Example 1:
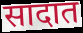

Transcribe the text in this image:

सादात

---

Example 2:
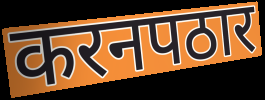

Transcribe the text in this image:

करनपठार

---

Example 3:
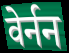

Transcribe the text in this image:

वेर्नन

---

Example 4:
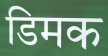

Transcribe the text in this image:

डिमक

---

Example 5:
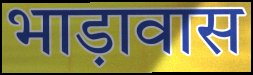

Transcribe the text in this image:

भाड़ावास